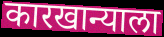
कारखान्याला